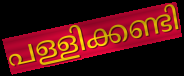
പള്ളിക്കണ്ടി